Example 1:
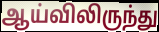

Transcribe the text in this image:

ஆய்விலிருந்து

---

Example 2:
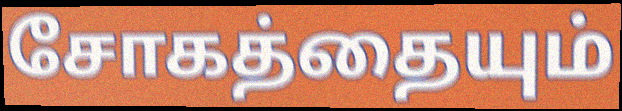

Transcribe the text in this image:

சோகத்தையும்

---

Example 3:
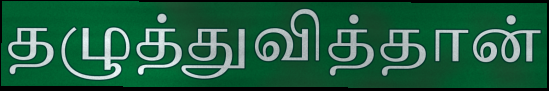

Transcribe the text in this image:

தழுத்துவித்தான்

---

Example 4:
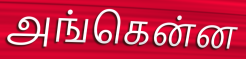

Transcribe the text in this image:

அங்கென்ன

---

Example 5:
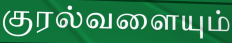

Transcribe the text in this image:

குரல்வளையும்